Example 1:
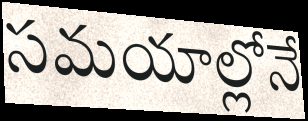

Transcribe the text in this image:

సమయాల్లోనే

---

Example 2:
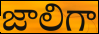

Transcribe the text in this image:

జాలిగా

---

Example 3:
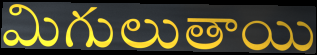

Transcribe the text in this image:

మిగులుతాయి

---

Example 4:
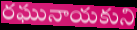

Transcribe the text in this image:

రఘునాయకుని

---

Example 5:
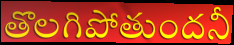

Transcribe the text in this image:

తొలగిపోతుందనీ